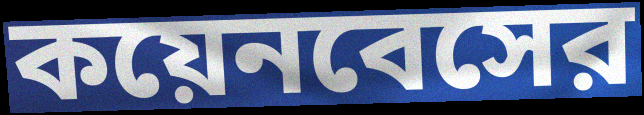
কয়েনবেসের